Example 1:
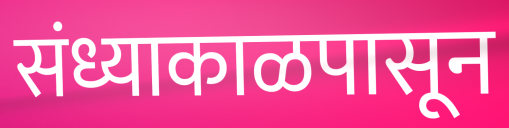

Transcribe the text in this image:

संध्याकाळपासून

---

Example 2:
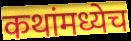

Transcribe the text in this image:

कथांमध्येच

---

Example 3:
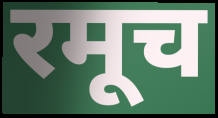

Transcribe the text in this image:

रमूच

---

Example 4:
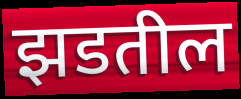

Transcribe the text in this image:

झडतील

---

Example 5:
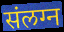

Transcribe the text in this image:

संलग्‍न